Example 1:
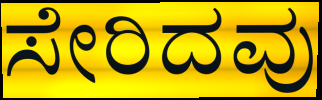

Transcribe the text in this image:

ಸೇರಿದವು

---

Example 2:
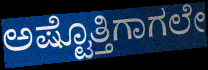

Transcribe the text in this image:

ಅಷ್ಟೊತ್ತಿಗಾಗಲೇ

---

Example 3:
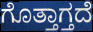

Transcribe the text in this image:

ಗೊತ್ತಾಗ್ತದೆ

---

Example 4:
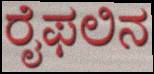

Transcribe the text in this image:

ರೈಫಲಿನ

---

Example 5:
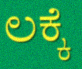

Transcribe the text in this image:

ಲಕ್ಕೆ